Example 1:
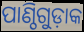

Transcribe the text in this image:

ପାଣ୍ଠିଗୁଡ଼ାକ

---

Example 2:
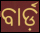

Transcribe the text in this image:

ବାର୍ଡ଼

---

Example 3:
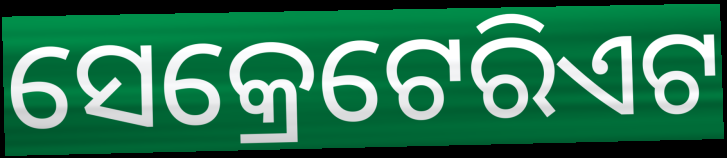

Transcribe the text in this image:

ସେକ୍ରେଟେରିଏଟ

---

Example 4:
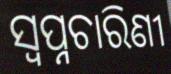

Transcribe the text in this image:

ସ୍ୱପ୍ନଚାରିଣୀ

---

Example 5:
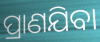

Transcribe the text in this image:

ପ୍ରାଣଯିବା